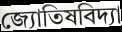
জ্যোতিষবিদ্যা